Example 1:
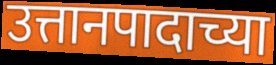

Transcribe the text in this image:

उत्तानपादाच्या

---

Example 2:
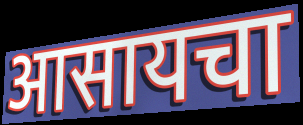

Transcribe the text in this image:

आसायचा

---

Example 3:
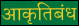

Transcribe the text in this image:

आकृतिबंध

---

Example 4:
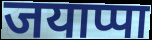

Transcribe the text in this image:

जयाप्पा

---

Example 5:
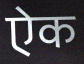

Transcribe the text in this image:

ऐक